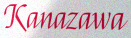
Kanazawa